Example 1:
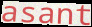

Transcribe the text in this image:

asant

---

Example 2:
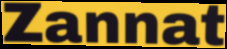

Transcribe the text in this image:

Zannat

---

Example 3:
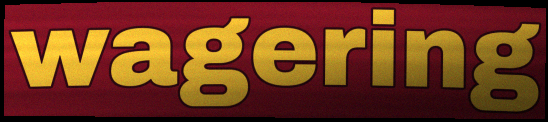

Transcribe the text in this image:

wagering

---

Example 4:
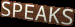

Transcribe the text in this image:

SPEAKS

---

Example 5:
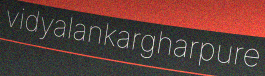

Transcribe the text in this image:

vidyalankargharpure